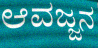
ಆವಜ್ಜನ